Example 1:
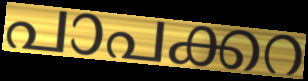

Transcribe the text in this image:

പാപക്കറ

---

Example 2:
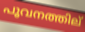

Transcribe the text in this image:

പൂവനത്തില്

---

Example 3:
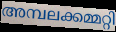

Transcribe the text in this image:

അമ്പലക്കമ്മറ്റി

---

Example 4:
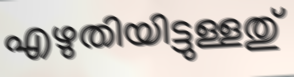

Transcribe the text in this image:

എഴുതിയിട്ടുള്ളതു്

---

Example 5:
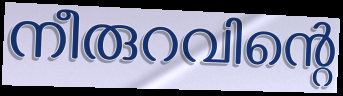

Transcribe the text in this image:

നീരുറവിന്റെ